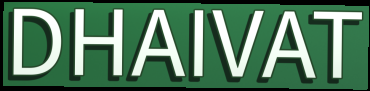
DHAIVAT